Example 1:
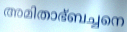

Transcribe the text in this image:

അമിതാഭ്ബച്ചനെ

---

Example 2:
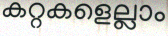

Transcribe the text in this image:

കറ്റകളെല്ലാം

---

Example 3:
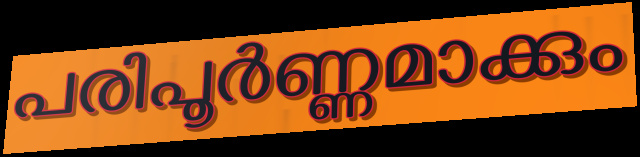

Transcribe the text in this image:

പരിപൂർണ്ണമാക്കും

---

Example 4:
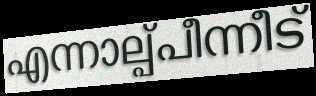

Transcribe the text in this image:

എന്നാല്പ്പീന്നീട്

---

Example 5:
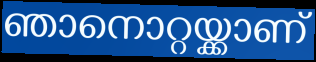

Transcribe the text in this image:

ഞാനൊറ്റയ്ക്കാണ്